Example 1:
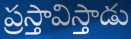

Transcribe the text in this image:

ప్రస్తావిస్తాడు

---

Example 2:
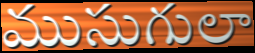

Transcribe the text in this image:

ముసుగులా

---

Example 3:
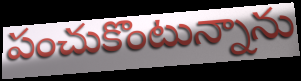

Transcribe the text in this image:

పంచుకొంటున్నాను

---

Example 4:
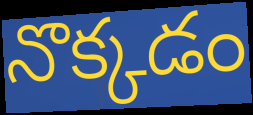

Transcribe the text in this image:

నొక్కడం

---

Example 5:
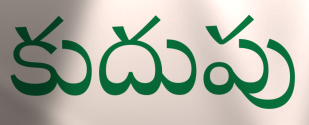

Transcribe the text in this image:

కుదుపు